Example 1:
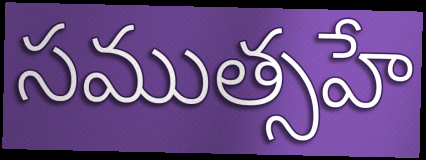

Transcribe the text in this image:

సముత్సహే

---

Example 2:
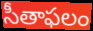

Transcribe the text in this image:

సీతాఫలం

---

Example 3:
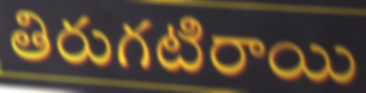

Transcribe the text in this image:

తిరుగటిరాయి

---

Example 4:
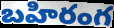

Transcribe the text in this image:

బహిరంగ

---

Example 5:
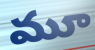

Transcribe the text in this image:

మూ